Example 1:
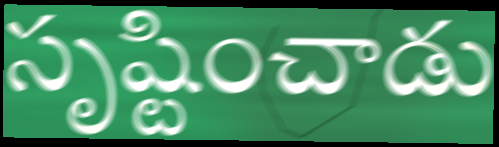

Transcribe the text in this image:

సృష్టించాడు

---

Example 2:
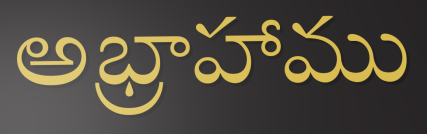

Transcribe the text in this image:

అభ్రాహాము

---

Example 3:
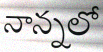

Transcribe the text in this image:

నాన్నలో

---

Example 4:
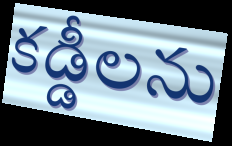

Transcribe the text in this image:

కడ్డీలను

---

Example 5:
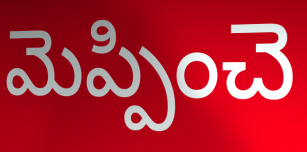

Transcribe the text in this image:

మెప్పించె